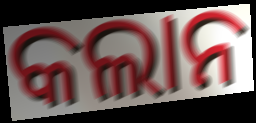
କଲାନ